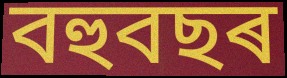
বহুবছৰ